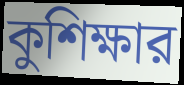
কুশিক্ষার